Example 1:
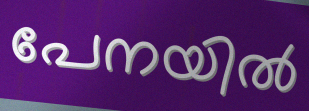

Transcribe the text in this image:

പേനയിൽ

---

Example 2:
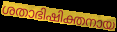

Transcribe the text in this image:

ശതാഭിഷിക്തനായ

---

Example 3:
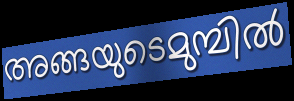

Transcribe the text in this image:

അങ്ങയുടെമുമ്പിൽ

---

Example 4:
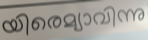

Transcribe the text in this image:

യിരെമ്യാവിന്നു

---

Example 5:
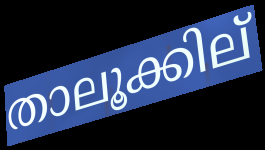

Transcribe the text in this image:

താലൂക്കില്